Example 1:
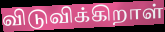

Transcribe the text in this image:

விடுவிக்கிறாள்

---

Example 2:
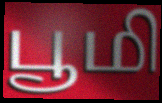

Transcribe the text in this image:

பூமி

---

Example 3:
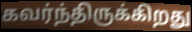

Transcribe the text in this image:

கவர்ந்திருக்கிறது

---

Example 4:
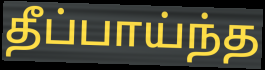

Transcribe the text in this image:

தீப்பாய்ந்த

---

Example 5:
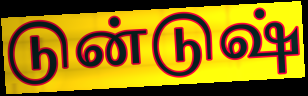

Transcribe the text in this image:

டுன்டுஷ்